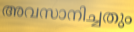
അവസാനിച്ചതും